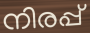
നിരപ്പ്